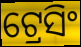
ଟ୍ରେସିଂ